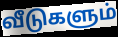
வீடுகளும்